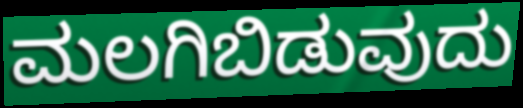
ಮಲಗಿಬಿಡುವುದು